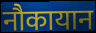
नौकायान